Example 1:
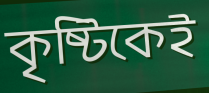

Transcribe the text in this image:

কৃষ্টিকেই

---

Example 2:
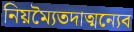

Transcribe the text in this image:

নিয়ম্যৈতদাত্মন্যেব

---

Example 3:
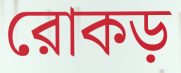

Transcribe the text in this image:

রোকড়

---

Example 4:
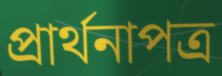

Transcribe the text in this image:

প্রার্থনাপত্র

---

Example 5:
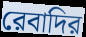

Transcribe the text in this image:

রেবাদির